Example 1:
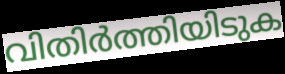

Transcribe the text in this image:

വിതിർത്തിയിടുക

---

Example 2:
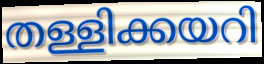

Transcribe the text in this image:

തള്ളിക്കയറി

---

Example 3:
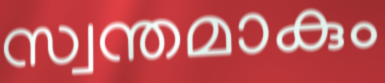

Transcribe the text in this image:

സ്വന്തമാകും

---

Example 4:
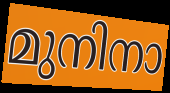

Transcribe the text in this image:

മുനിനാ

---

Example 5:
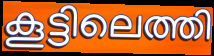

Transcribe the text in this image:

കൂട്ടിലെത്തി